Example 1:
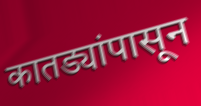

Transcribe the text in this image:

कातड्यांपासून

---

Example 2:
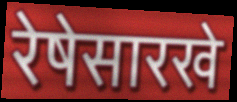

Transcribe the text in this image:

रेषेसारखे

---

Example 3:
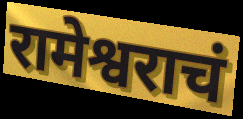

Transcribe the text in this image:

रामेश्वराचं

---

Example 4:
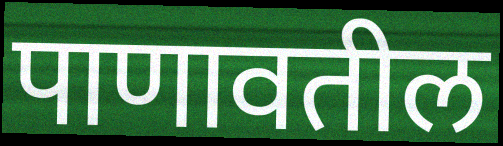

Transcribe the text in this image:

पाणावतील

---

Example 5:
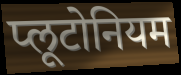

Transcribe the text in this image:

प्लूटोनियम